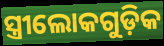
ସ୍ତ୍ରୀଲୋକଗୁଡ଼ିକ